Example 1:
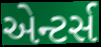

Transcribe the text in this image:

એન્ટર્સ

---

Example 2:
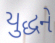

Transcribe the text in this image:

યુદ્ધને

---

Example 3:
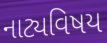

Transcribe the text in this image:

નાટ્યવિષય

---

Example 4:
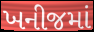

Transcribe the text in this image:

ખનીજમાં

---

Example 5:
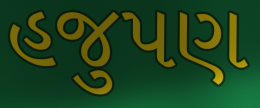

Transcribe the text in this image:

હજુપણ